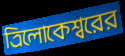
ত্রিলোকেশ্বরের